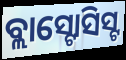
ବ୍ଲାସ୍ଟୋସିସ୍ଟ